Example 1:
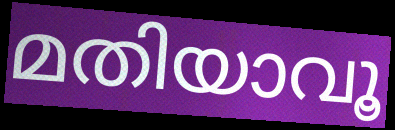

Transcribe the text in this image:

മതിയാവൂ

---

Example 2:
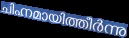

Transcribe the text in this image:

ചിഹ്നമായിത്തീർന്നു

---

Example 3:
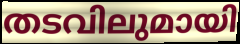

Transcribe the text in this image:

തടവിലുമായി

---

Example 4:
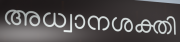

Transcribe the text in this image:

അധ്വാനശക്തി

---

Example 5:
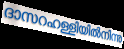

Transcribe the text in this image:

ദാസറഹള്ളിയിൽനിന്നു